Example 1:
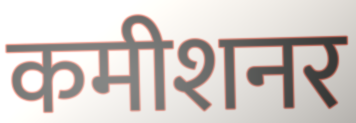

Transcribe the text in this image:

कमीशनर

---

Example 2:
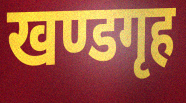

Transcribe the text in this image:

खण्डगृह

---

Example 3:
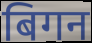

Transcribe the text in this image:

बिगन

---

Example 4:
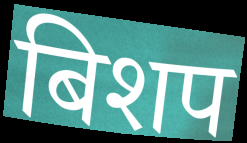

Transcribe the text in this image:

बिशप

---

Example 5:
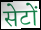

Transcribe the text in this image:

सेटों